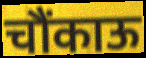
चौंकाऊ